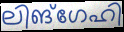
ലിങ്ഗേഹി